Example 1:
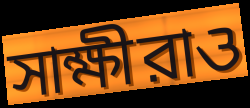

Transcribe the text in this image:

সাক্ষীরাও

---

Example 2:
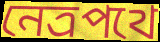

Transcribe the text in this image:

নেত্রপথে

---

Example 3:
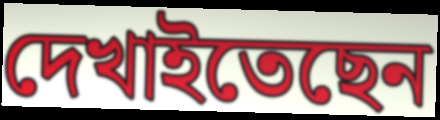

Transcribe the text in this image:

দেখাইতেছেন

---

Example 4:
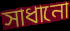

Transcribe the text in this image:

সাধানো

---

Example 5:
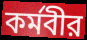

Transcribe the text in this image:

কর্মবীর